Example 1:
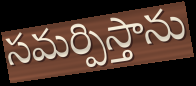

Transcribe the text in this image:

సమర్పిస్తాను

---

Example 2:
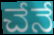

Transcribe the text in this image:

చేనే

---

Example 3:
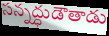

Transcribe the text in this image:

సన్నద్ధుడౌతాడు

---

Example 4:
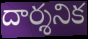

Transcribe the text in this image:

దార్శనిక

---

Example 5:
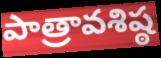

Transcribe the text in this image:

పాత్రావశిష్ఠ